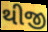
થીજી